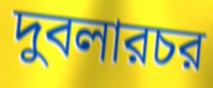
দুবলারচর